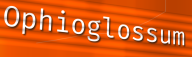
Ophioglossum